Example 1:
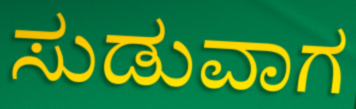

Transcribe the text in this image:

ಸುಡುವಾಗ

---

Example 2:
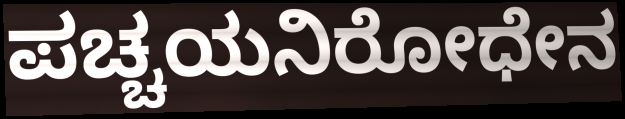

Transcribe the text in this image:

ಪಚ್ಚಯನಿರೋಧೇನ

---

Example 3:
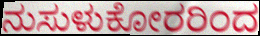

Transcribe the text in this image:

ನುಸುಳುಕೋರರಿಂದ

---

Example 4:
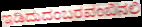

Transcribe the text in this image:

ಇಡಿದುದಂಬರವಂಬಿನಲಿ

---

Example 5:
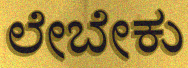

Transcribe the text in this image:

ಲೇಬೇಕು